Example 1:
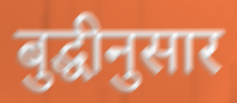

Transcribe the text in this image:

बुद्धीनुसार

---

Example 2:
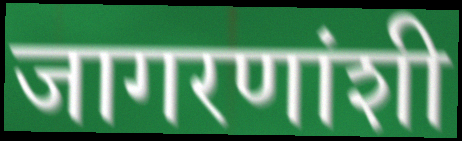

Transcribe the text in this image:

जागरणांशी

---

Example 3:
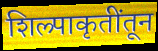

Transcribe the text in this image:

शिल्पाकृतींतून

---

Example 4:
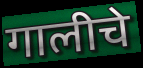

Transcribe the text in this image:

गालीचे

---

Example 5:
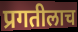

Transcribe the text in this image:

प्रगतीलाच